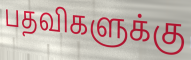
பதவிகளுக்கு